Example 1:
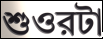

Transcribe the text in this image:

শুওরটা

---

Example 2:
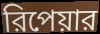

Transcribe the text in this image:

রিপেয়ার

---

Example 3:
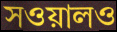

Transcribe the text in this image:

সওয়ালও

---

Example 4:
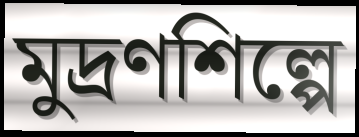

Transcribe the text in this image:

মুদ্রণশিল্পে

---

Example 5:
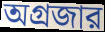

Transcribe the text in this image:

অগ্রজার